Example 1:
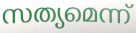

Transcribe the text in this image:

സത്യമെന്ന്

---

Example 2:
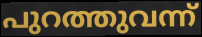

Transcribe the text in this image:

പുറത്തുവന്ന്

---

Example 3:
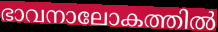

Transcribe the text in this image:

ഭാവനാലോകത്തിൽ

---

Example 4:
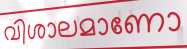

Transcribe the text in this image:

വിശാലമാണോ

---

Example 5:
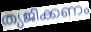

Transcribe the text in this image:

ത്യജിക്കണം